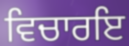
ਵਿਚਾਰਇ